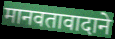
मानवतावादाने